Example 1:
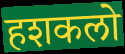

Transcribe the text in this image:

हशकलो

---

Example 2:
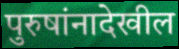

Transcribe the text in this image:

पुरुषांनादेखील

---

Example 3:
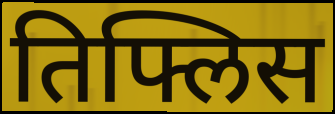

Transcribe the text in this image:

तिफ्लिस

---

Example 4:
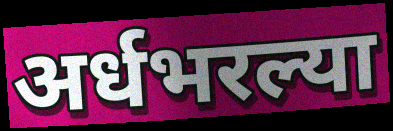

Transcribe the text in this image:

अर्धभरल्या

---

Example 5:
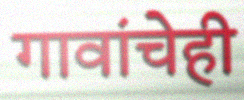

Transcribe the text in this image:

गावांचेही